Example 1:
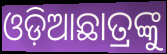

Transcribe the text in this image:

ଓଡ଼ିଆଛାତ୍ରଙ୍କୁ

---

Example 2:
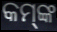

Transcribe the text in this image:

କମ୍‌ଙ୍କ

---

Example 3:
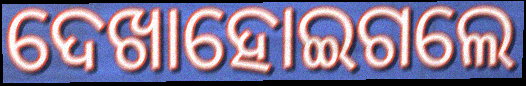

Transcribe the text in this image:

ଦେଖାହୋଇଗଲେ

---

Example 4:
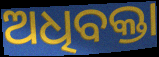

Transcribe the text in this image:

ଅଧିବକ୍ତା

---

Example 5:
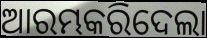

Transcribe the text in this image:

ଆରମ୍ଭକରିଦେଲା